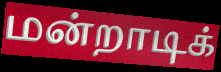
மன்றாடிக்